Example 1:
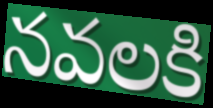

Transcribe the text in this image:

నవలకి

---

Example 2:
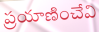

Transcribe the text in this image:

ప్రయాణించేవి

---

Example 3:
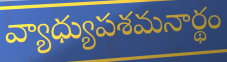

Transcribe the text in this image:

వ్యాధ్యుపశమనార్థం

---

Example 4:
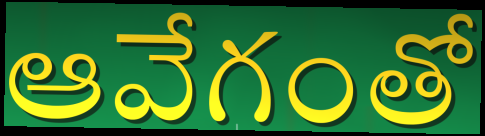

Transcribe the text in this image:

ఆవేగంతో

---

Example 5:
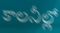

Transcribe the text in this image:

కాలనీల్లో